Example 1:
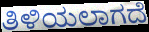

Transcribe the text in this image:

ತಿಳಿಯಲಾಗದೆ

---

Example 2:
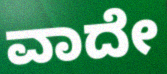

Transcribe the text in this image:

ವಾದೇ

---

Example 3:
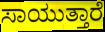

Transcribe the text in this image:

ಸಾಯುತ್ತಾರೆ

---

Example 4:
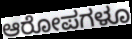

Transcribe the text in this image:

ಆರೋಪಗಳೂ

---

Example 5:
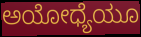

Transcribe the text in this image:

ಅಯೋಧ್ಯೆಯೂ